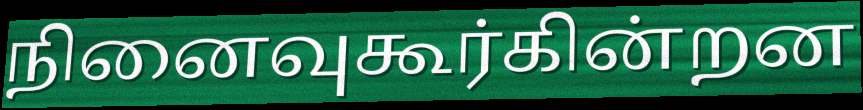
நினைவுகூர்கின்றன